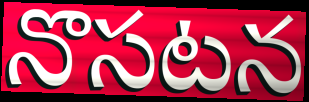
నొసటన